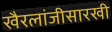
खैरलांजीसारखी